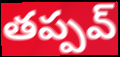
తప్పవ్